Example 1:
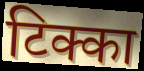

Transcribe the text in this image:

टिक्का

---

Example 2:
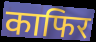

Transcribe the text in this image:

काफिर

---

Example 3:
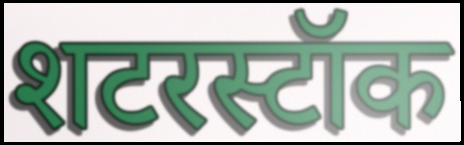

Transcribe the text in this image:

शटरस्टॉक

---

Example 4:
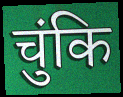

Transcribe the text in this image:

चुंकि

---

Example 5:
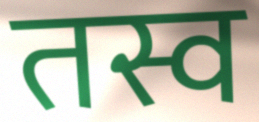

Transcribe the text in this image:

तस्व